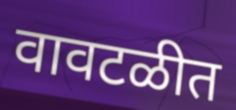
वावटळीत